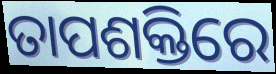
ତାପଶକ୍ତିରେ